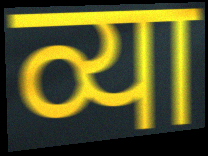
व्या